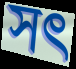
সৎ